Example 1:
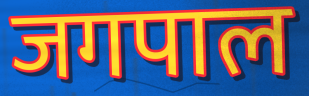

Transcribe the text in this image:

जगपाल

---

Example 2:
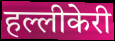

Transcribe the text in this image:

हल्लीकेरी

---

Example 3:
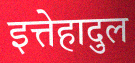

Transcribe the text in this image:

इत्तेहादुल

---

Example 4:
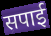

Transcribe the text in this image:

सपाई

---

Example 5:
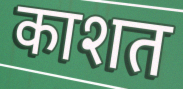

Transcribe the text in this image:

काशत